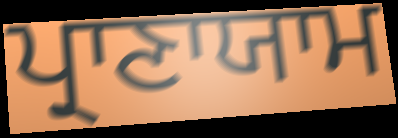
ਪ੍ਰਾਣਾਯਾਮ